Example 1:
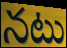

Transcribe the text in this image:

నటు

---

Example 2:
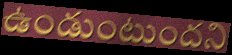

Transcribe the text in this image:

ఉండుంటుందని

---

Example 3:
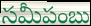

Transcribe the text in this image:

సమీపంబు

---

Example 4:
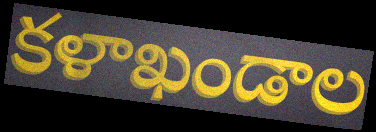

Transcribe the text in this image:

కళాఖండాల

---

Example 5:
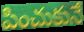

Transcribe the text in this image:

పించుకునే